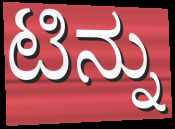
ಟಿನ್ನು